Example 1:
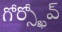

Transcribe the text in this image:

గోర్స్ఖోవ్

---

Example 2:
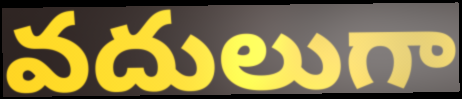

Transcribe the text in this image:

వదులుగా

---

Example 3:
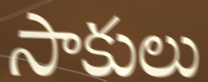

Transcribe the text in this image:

సాకులు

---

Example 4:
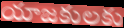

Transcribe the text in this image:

యాజకులకు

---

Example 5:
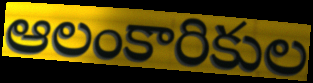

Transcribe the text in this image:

ఆలంకారికుల